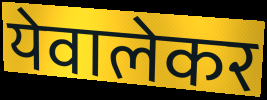
येवालेकर